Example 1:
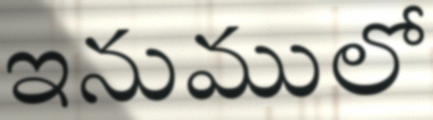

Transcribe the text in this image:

ఇనుములో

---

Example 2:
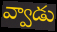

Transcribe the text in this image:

వ్వాడు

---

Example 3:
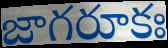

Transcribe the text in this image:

జాగరూకః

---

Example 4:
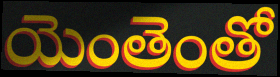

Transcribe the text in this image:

యెంతెంతో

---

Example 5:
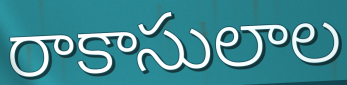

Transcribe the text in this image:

రాకాసులాల